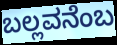
ಬಲ್ಲವನೆಂಬ